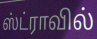
ஸ்ட்ராவில்